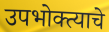
उपभोक्त्याचे